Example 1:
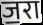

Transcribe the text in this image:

ज॒रा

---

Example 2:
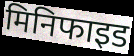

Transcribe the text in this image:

मिनिफाइड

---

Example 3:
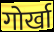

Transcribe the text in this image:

गोर्खा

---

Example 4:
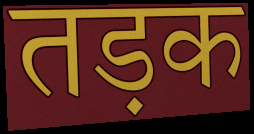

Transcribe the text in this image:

तड़क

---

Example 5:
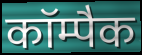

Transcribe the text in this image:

कॉम्पैक